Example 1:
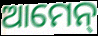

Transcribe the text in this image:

ଆମେନ୍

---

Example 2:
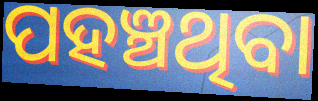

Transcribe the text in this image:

ପହଞ୍ଚଥିବା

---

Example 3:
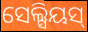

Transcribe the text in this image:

ସେଲ୍ସିୟସ୍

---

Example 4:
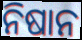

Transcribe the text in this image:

ନିଷାନ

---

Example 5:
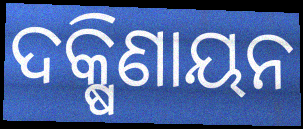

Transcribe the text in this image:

ଦକ୍ଷିଣାୟନ